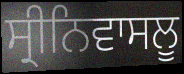
ਸ੍ਰੀਨਿਵਾਸਲੂ